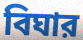
বিঘার